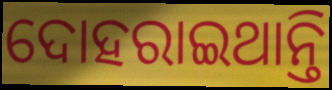
ଦୋହରାଇଥାନ୍ତି